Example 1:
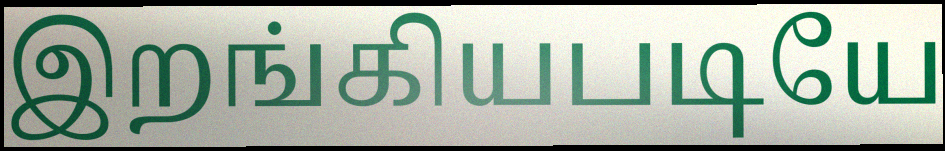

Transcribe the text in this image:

இறங்கியபடியே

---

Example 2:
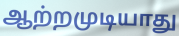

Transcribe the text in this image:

ஆற்றமுடியாது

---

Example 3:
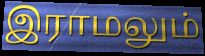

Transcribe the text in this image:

இராமலும்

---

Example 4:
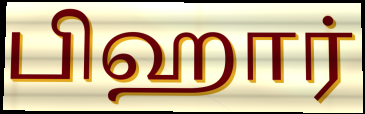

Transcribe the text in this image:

பிஹார்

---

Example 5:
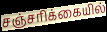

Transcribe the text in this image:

சஞ்சரிக்கையில்